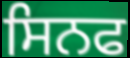
ਸਿਨਫ